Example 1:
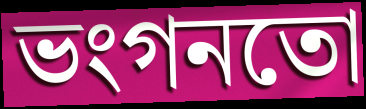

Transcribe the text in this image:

ভংগনতো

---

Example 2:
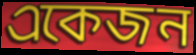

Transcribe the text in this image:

একেজন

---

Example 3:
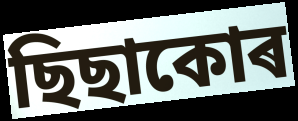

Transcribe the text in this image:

ছিছাকোৰ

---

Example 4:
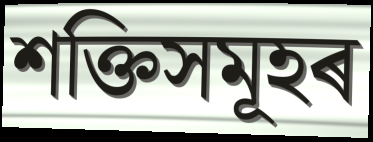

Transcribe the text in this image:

শক্তিসমূহৰ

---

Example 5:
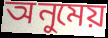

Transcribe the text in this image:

অনুমেয়